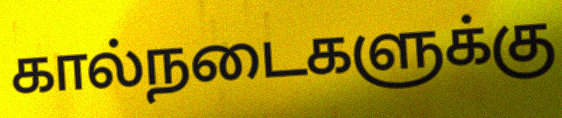
கால்நடைகளுக்கு